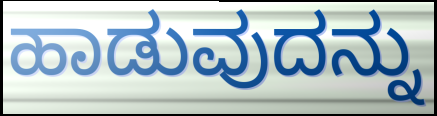
ಹಾಡುವುದನ್ನು